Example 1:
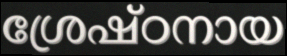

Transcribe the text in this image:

ശ്രേഷ്ഠനായ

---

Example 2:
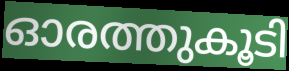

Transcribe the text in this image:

ഓരത്തുകൂടി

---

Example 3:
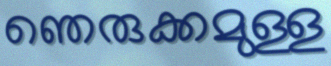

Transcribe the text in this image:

ഞെരുക്കമുള്ള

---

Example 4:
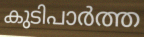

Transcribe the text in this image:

കുടിപാർത്ത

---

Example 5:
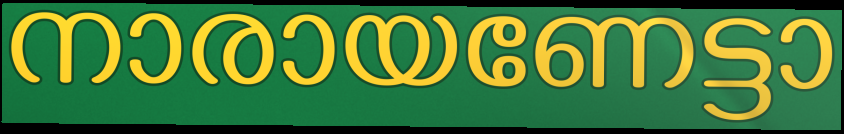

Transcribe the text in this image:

നാരായണേട്ടാ